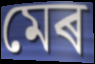
মেৰ